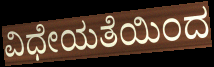
ವಿಧೇಯತೆಯಿಂದ